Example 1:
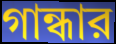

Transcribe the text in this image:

গান্ধার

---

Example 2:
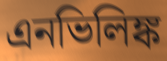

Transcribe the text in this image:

এনভিলিঙ্ক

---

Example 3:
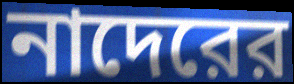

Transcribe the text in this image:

নাদেরের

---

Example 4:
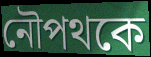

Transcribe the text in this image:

নৌপথকে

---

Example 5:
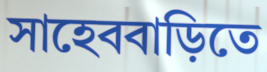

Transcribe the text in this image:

সাহেববাড়িতে